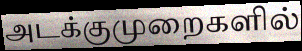
அடக்குமுறைகளில்